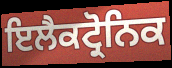
ਇਲੈਕਟ੍ਰੋਨਿਕ